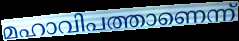
മഹാവിപത്താണെന്ന്